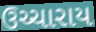
ઉચ્ચારાય